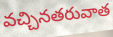
వచ్చినతరువాత